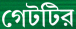
গেটটির